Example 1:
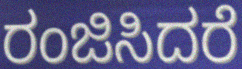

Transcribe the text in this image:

ರಂಜಿಸಿದರೆ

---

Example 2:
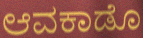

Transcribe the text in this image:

ಆವಕಾಡೊ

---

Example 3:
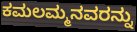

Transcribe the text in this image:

ಕಮಲಮ್ಮನವರನ್ನು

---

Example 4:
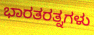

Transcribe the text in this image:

ಭಾರತರತ್ನಗಳು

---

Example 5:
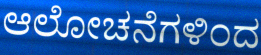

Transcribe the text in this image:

ಆಲೋಚನೆಗಳಿಂದ